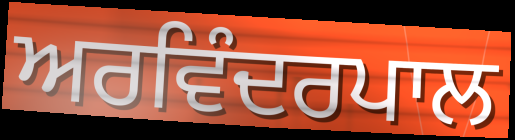
ਅਰਵਿੰਦਰਪਾਲ